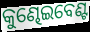
କୁଣ୍ଢେଇବେଣ୍ଟ